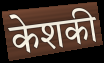
केशकी